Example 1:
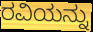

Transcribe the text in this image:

ರವಿಯನ್ನು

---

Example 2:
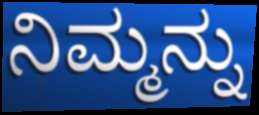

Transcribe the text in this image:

ನಿಮ್ಮನ್ನು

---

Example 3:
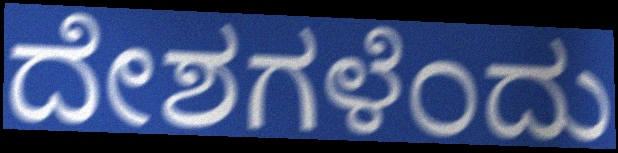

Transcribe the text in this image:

ದೇಶಗಳೆಂದು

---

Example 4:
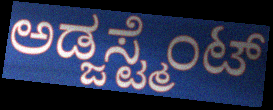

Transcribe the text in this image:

ಅಡ್ಜಸ್ಟ್ಮೆಂಟ್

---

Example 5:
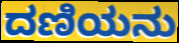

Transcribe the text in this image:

ದಣಿಯನು